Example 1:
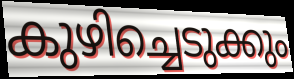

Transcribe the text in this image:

കുഴിച്ചെടുക്കും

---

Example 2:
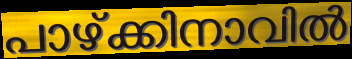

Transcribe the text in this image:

പാഴ്ക്കിനാവിൽ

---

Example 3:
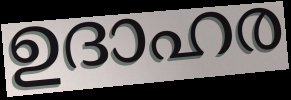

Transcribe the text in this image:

ഉദാഹര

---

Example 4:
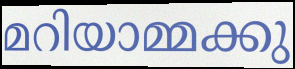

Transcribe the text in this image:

മറിയാമ്മക്കു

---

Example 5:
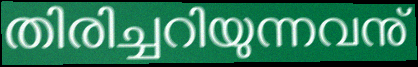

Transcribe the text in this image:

തിരിച്ചറിയുന്നവനു്